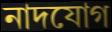
নাদযোগ